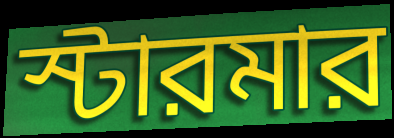
স্টারমার